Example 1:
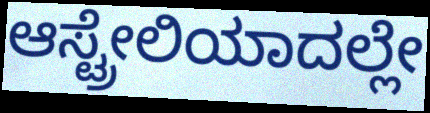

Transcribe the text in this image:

ಆಸ್ಟ್ರೇಲಿಯಾದಲ್ಲೇ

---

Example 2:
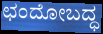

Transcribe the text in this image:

ಛಂದೋಬದ್ಧ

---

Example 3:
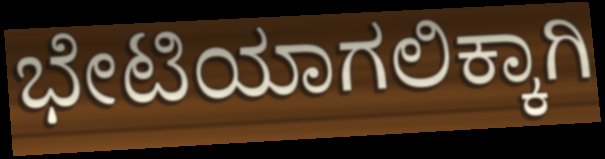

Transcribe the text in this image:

ಭೇಟಿಯಾಗಲಿಕ್ಕಾಗಿ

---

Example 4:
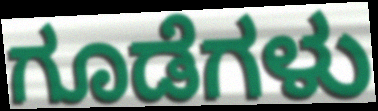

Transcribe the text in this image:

ಗೂಡೆಗಳು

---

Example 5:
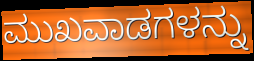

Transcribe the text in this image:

ಮುಖವಾಡಗಳನ್ನು